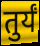
तुर्यं